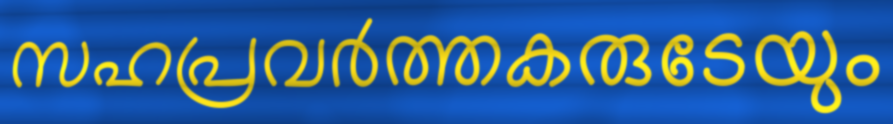
സഹപ്രവർത്തകരുടേയും